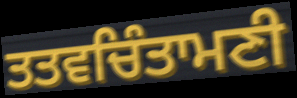
ਤਤਵਚਿੰਤਾਮਣੀ